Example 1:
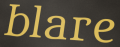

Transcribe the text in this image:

blare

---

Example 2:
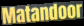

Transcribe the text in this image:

Matandoor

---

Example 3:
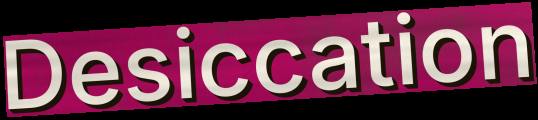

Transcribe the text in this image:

Desiccation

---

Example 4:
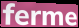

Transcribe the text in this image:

ferme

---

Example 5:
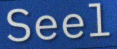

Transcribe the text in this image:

Seel